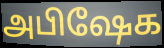
அபிஷேக